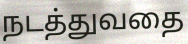
நடத்துவதை